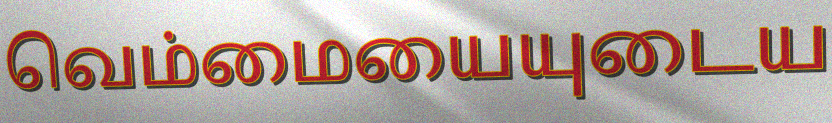
வெம்மையையுடைய